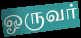
ஓருவர்